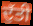
ਦੁੱਤੀ